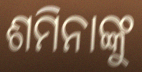
ଶମିନାଙ୍କୁ